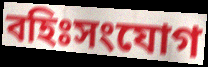
বহিঃসংযোগ